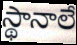
స్థానాలే